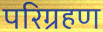
परिग्रहण